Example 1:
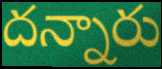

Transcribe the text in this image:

దన్నారు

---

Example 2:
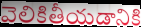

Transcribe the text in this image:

వెలికితీయడానికి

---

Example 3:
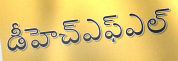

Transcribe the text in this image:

డీహెచ్ఎఫ్ఎల్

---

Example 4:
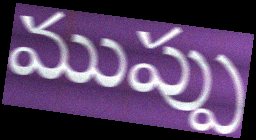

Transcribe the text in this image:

ముప్పు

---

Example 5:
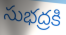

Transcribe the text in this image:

సుభద్రకి